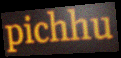
pichhu